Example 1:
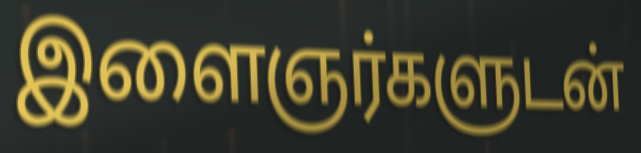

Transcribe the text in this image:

இளைஞர்களுடன்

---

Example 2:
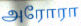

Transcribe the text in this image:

அரோரா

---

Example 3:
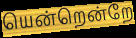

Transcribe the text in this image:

யென்றென்றே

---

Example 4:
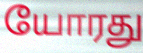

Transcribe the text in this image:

யோரது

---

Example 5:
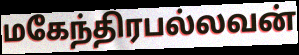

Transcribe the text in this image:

மகேந்திரபல்லவன்